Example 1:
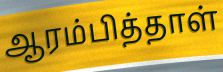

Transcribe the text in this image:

ஆரம்பித்தாள்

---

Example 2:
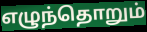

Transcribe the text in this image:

எழுந்தொறும்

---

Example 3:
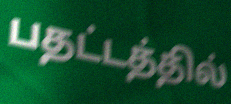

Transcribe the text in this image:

பதட்டத்தில்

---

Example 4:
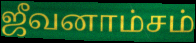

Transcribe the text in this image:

ஜீவனாம்சம்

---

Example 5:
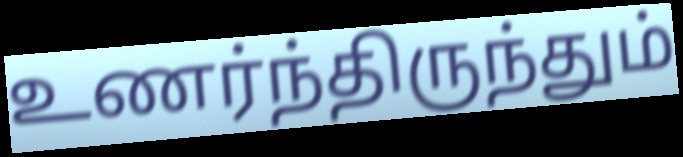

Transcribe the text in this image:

உணர்ந்திருந்தும்